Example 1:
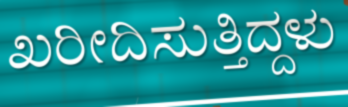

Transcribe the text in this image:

ಖರೀದಿಸುತ್ತಿದ್ದಳು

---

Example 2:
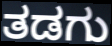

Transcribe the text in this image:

ತಡಗು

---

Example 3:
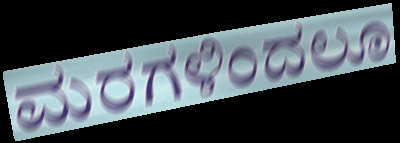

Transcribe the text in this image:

ಮರಗಳಿಂದಲೂ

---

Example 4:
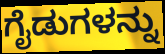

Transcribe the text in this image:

ಗೈಡುಗಳನ್ನು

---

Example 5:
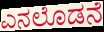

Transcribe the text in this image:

ಎನಲೊಡನೆ